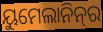
ୟୁମେଲାନିନ୍‌ର